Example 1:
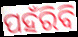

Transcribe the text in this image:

ପହଁରିବି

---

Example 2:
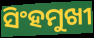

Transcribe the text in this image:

ସିଂହମୁଖୀ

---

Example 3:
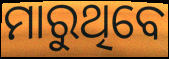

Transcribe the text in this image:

ମାରୁଥିବେ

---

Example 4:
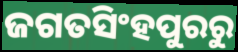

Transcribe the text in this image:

ଜଗତସିଂହପୁରରୁ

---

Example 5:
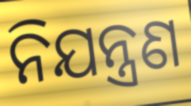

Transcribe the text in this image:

ନିଯନ୍ତ୍ରଣ